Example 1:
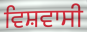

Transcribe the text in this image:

ਵਿਸ਼ਵਾਸੀ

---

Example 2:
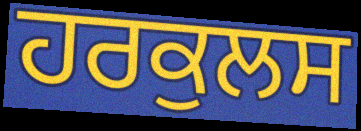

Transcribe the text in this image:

ਹਰਕੁਲਸ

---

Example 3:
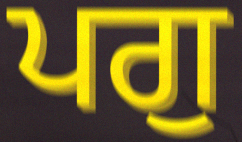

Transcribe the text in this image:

ਪਗੁ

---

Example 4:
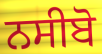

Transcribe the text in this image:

ਨਸੀਬੋ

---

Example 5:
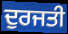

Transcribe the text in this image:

ਦੁਰਜਤੀ